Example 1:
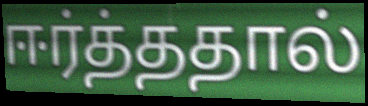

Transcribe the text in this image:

ஈர்த்ததால்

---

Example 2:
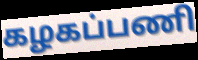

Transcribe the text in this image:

கழகப்பணி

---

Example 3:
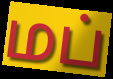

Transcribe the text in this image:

மப்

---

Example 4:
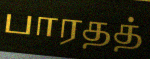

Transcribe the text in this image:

பாரதத்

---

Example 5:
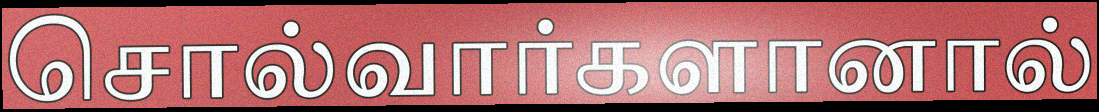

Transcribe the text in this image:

சொல்வார்களானால்